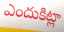
ఎందుకిట్లా